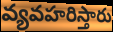
వ్యవహరిస్తారు